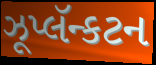
ઝૂપ્લૅન્કટન